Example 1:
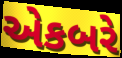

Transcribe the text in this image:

એકબરે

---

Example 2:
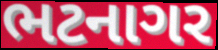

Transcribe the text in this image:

ભટનાગર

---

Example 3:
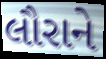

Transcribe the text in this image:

લૌરાને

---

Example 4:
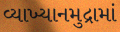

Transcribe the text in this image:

વ્યાખ્યાનમુદ્રામાં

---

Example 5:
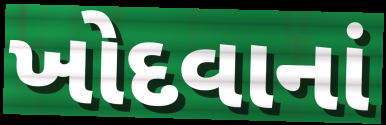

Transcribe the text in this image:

ખોદવાનાં